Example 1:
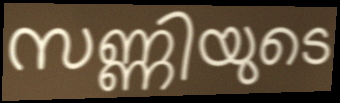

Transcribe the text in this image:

സണ്ണിയുടെ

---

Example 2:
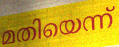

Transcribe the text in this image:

മതിയെന്ന്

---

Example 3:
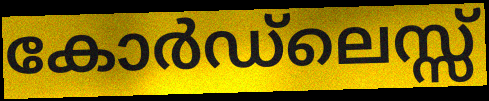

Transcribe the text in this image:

കോർഡ്ലെസ്സ്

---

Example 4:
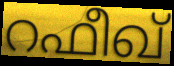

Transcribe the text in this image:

റഫീഖ്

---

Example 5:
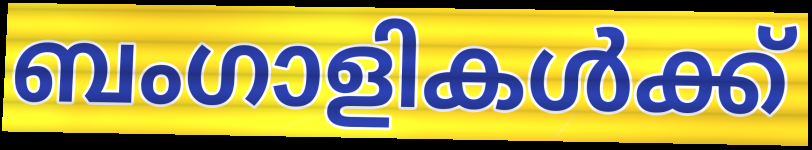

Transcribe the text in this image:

ബംഗാളികൾക്ക്